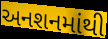
અનશનમાંથી